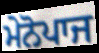
ਮੇਨੋਪਾਜ